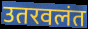
उतरवलंत